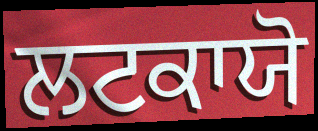
ਲਟਕਾਯੋ